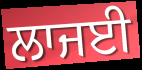
ਲਾਜਈ